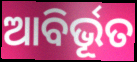
ଆବିର୍ଭୂତ